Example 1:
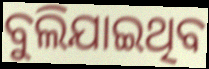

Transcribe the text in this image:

ବୁଲିଯାଇଥିବ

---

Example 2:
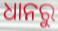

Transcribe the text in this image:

ଧାନରୁ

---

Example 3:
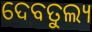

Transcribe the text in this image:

ଦେବତୁଲ୍ୟ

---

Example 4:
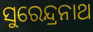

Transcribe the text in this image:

ସୁରେନ୍ଦ୍ରନାଥ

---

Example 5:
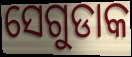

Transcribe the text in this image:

ସେଗୁଡାକ